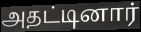
அதட்டினார்